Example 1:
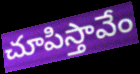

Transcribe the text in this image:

చూపిస్తావేం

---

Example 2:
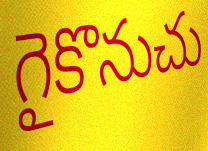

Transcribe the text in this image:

గైకొనుచు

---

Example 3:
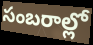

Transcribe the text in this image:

సంబరాల్లో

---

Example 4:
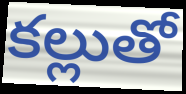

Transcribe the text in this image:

కల్లుతో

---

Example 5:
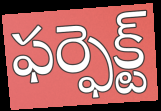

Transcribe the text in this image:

ఫర్ఫెక్ట్